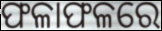
ଫଳାଫଳରେ